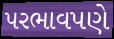
પરભાવપણે